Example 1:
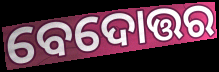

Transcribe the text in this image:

ବେଦୋତ୍ତର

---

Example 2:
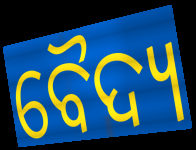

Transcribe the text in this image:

ବୈଦ୍ଯ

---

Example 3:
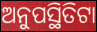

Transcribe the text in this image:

ଅନୁପସ୍ଥିତିଟା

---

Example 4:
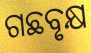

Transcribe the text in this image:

ଗଛବୃକ୍ଷ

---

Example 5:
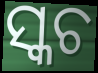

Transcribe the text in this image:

ସ୍କଚ